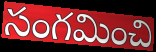
సంగమించి